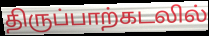
திருப்பாற்கடலில்